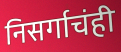
निसर्गाचंही